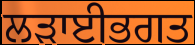
ਲੜਾਈਭਗਤ